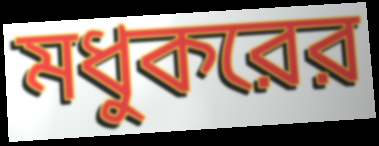
মধুকরের